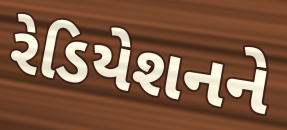
રેડિયેશનને